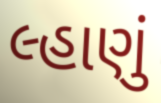
લ્હાણું